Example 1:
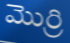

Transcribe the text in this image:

మొర్రి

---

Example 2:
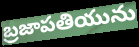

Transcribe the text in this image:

బ్రజాపతియును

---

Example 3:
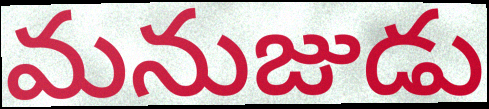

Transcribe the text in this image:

మనుజుడు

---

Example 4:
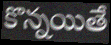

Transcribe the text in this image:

కొన్నయితే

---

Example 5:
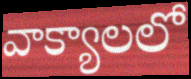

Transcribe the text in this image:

వాక్యాలలో